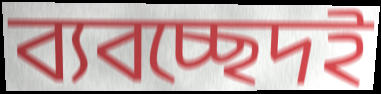
ব্যবচ্ছেদই